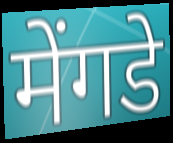
मेंगडे